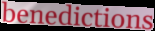
benedictions